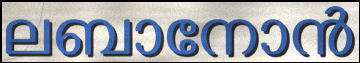
ലബാനോൻ